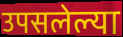
उपसलेल्या